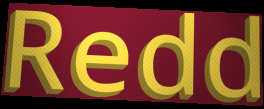
Redd